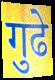
गुढे